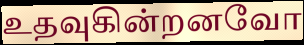
உதவுகின்றனவோ